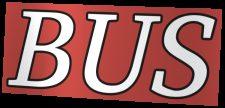
BUS